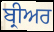
ਬ੍ਰੀਅਰ